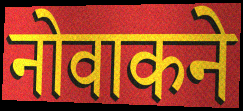
नोवाकने